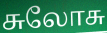
சுலோசு